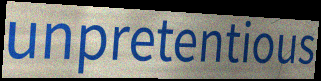
unpretentious